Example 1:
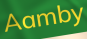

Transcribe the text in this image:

Aamby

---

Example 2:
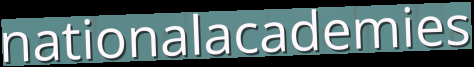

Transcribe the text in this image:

nationalacademies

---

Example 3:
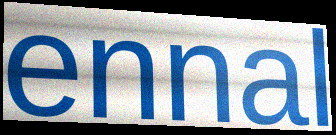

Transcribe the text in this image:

ennal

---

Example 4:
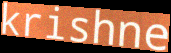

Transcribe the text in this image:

krishne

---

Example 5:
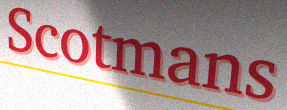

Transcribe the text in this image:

Scotmans